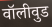
वॉलीवुड